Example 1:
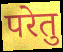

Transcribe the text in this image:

परेतु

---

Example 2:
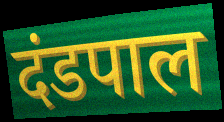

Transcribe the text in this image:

दंडपाल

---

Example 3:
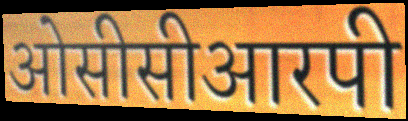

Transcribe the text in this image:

ओसीसीआरपी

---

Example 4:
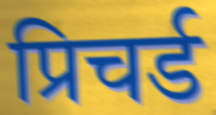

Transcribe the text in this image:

प्रिचर्ड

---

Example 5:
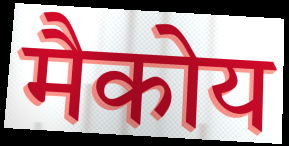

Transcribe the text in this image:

मैकोय